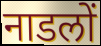
नाडलों